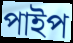
পাইপ